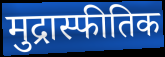
मुद्रास्फीतिक